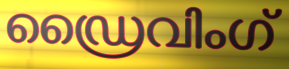
ഡ്രൈവിംഗ്